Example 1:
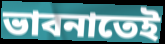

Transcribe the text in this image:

ভাবনাতেই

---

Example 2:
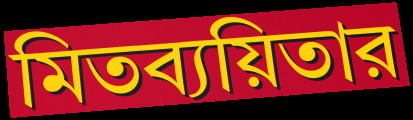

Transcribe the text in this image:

মিতব্যয়িতার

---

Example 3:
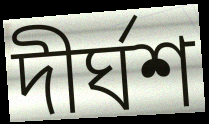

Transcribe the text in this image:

দীর্ঘশ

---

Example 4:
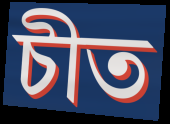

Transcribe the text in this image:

চীত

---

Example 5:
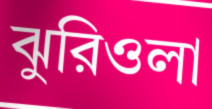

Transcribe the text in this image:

ঝুরিওলা